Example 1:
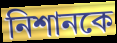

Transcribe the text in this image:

নিশানকে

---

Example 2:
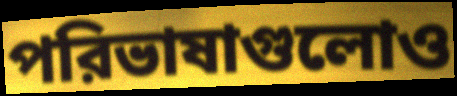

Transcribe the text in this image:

পরিভাষাগুলোও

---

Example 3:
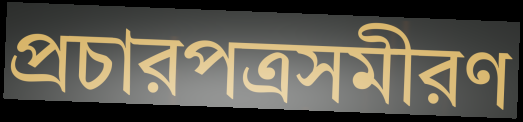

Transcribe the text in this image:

প্রচারপত্রসমীরণ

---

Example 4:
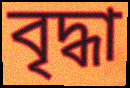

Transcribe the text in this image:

বৃদ্ধা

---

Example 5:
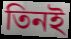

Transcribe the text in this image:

তিনই